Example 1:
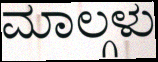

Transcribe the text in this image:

ಮಾಲ್ಗಳು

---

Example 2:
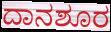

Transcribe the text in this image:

ದಾನಶೂರ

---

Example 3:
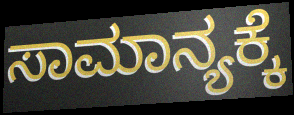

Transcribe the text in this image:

ಸಾಮಾನ್ಯಕ್ಕೆ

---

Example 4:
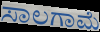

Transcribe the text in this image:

ಸಾಲಗಾಮೆ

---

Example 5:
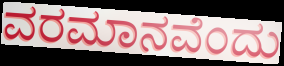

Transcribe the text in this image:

ವರಮಾನವೆಂದು